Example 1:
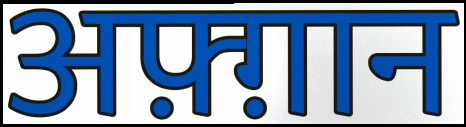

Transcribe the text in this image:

अफ़्ग़ान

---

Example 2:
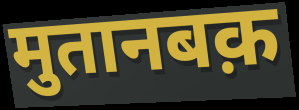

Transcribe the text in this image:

मुतानबक़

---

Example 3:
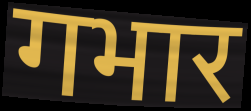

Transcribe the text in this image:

गभार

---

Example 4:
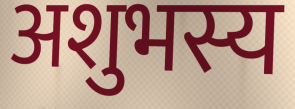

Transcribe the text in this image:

अशुभस्य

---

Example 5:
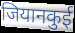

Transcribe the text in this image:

जियानकुई